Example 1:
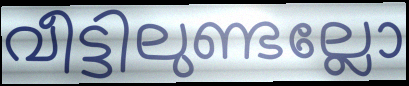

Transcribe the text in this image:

വീട്ടിലുണ്ടല്ലോ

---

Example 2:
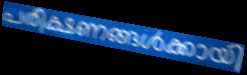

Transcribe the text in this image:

പരീക്ഷണങ്ങൾക്കായി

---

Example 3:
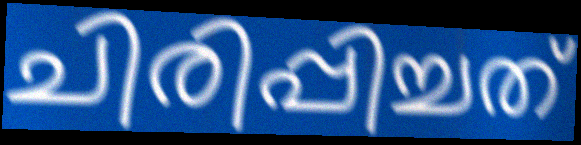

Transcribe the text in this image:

ചിരിപ്പിച്ചത്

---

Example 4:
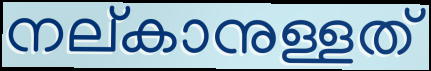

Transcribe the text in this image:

നല്കാനുള്ളത്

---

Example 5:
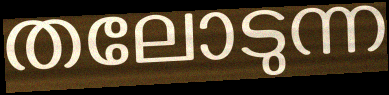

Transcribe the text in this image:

തലോടുന്ന